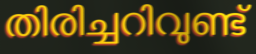
തിരിച്ചറിവുണ്ട്